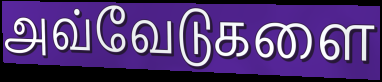
அவ்வேடுகளை